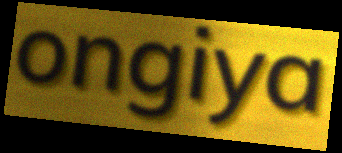
ongiya